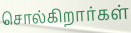
சொல்கிறார்கள்